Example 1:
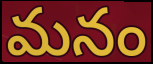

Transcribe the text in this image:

మనం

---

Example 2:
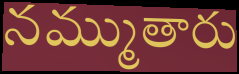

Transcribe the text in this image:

నమ్ముతారు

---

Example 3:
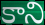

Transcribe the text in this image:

కాని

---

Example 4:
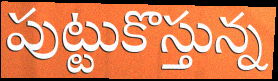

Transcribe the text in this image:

పుట్టుకొస్తున్న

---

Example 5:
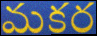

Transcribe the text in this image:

మకర